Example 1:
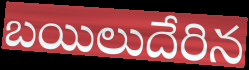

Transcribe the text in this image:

బయిలుదేరిన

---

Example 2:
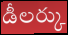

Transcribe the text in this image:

డీలర్కు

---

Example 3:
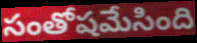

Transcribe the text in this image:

సంతోషమేసింది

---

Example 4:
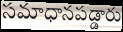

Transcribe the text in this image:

సమాధానపడ్డారు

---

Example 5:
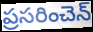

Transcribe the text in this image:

ప్రసరించెన్